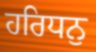
ਹਰਿਧਨੁ